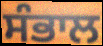
ਸੰਭਾਲ